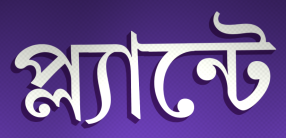
প্ল্যান্টে